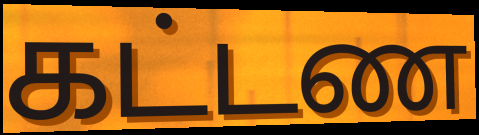
கட்டண